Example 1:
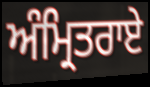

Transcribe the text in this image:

ਅੰਮ੍ਰਿਤਰਾਏ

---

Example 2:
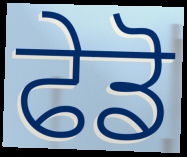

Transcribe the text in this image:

ਫੇਡੋ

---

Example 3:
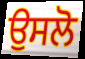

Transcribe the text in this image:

ਉਸਲੋ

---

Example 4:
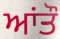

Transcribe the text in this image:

ਆਂਤੌ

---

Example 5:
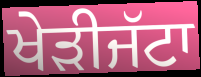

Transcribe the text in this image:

ਖੇੜੀਜੱਟਾ